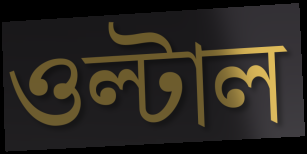
ওল্টাল